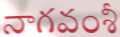
నాగవంశీ